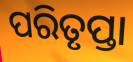
ପରିତୃପ୍ତା